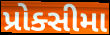
પ્રોક્સીમા